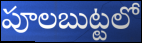
పూలబుట్టలో